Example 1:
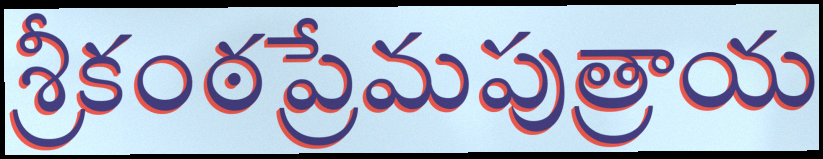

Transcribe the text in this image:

శ్రీకంఠప్రేమపుత్రాయ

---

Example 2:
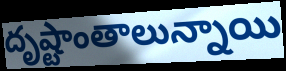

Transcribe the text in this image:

దృష్టాంతాలున్నాయి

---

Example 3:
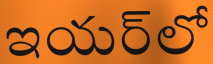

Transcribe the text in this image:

ఇయర్‌లో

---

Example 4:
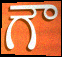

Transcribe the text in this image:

గౌ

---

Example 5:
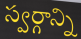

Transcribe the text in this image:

స్వర్గాన్ని